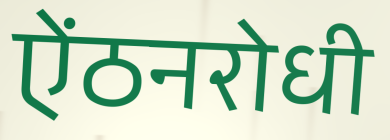
ऐंठनरोधी